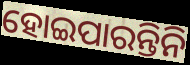
ହୋଇପାରନ୍ତିନି